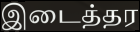
இடைத்தர